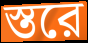
স্তরে